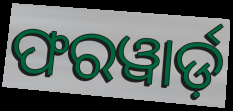
ଫରୱାର୍ଡ଼